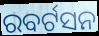
ରବର୍ଟସନ